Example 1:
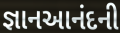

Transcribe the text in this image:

જ્ઞાનઆનંદની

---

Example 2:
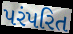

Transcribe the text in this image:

પરંપરિત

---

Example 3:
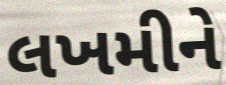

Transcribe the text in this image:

લખમીને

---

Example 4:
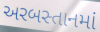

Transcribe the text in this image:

અરબસ્તાનમાં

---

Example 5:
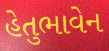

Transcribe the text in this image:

હેતુભાવેન